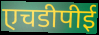
एचडीपीई